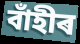
বাঁহীৰ